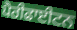
ਪੈਰੀਫਾਈਟਨ